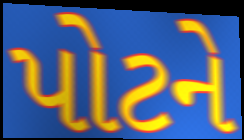
પોટને